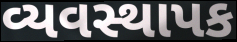
વ્યવસ્થાપક